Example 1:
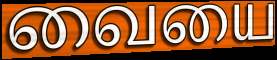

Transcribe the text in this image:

வையை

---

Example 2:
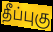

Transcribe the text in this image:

தீப்புகு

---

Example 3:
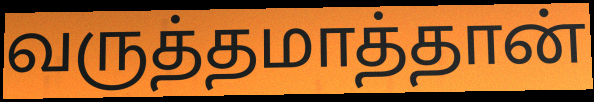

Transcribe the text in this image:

வருத்தமாத்தான்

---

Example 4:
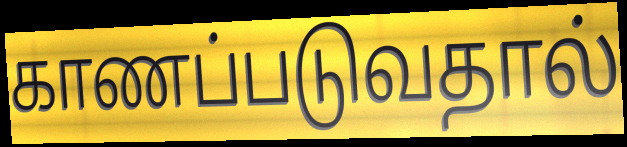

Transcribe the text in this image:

காணப்படுவதால்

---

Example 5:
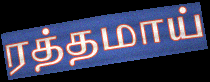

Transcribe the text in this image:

ரத்தமாய்